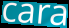
cara